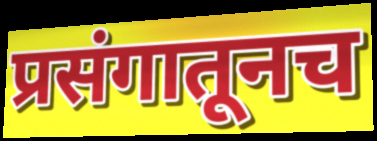
प्रसंगातूनच